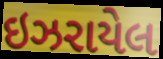
ઇઝરાયેલ